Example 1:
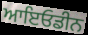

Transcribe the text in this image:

ਆਇਓਡੀਨ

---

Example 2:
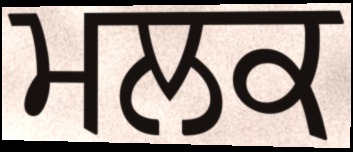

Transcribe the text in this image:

ਮਲਕ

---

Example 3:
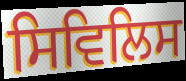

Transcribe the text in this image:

ਸਿਵਿਲਿਸ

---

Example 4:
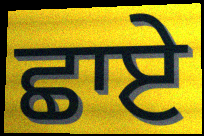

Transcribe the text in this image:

ਛਾਏ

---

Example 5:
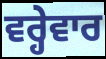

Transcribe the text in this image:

ਵਰ੍ਹੇਵਾਰ